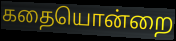
கதையொன்றை